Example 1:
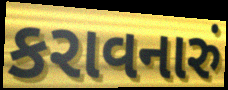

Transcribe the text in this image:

કરાવનારું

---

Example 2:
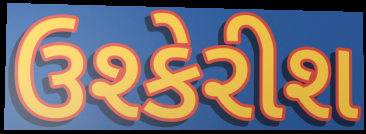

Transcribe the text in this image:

ઉશ્કેરીશ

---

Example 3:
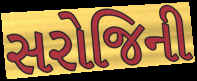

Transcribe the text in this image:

સરોજિની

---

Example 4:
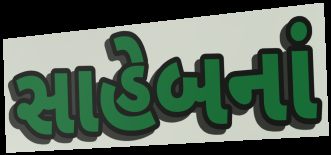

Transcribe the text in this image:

સાહેબનાં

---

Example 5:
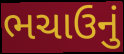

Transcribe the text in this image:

ભચાઉનું